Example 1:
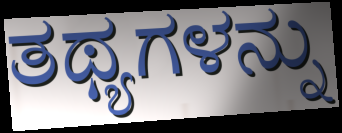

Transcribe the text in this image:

ತಥ್ಯಗಳನ್ನು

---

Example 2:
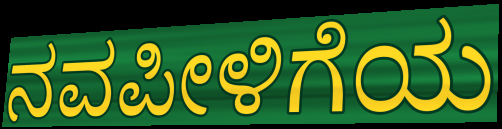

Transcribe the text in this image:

ನವಪೀಳಿಗೆಯ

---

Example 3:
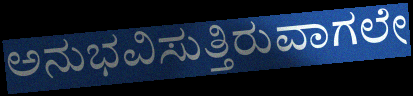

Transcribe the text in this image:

ಅನುಭವಿಸುತ್ತಿರುವಾಗಲೇ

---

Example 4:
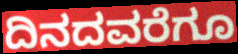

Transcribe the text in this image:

ದಿನದವರೆಗೂ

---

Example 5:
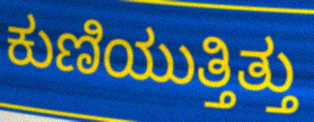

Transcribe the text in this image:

ಕುಣಿಯುತ್ತಿತ್ತು